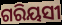
ଗରିୟସୀ